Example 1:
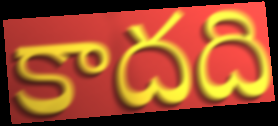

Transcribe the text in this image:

కాదది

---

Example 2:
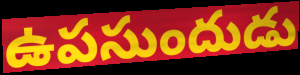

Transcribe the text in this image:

ఉపసుందుడు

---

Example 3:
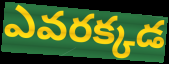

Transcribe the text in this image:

ఎవరక్కడ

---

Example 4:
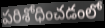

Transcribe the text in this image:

పరిశోధించడంలో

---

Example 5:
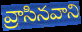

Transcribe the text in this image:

వ్రాసినవాని